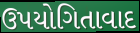
ઉપયોગિતાવાદ